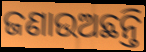
ଜଣାଉଅଛନ୍ତି